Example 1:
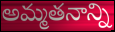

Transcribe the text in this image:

అమ్మతనాన్ని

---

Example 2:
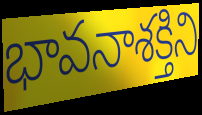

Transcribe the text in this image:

భావనాశక్తిని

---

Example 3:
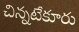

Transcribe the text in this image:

చిన్నటేకూరు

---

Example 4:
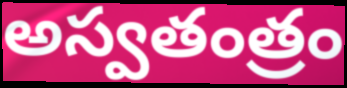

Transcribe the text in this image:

అస్వతంత్రం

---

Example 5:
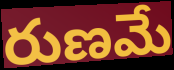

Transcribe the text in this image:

రుణమే